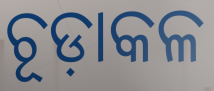
ଚୂଡ଼ାକଳ